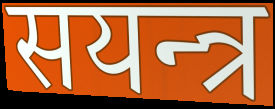
सयन्त्र